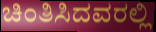
ಚಿಂತಿಸಿದವರಲ್ಲಿ